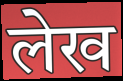
लेख